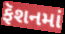
ફૅશનમાં